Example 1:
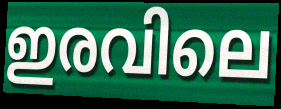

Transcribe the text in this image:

ഇരവിലെ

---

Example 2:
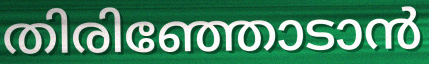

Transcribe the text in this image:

തിരിഞ്ഞോടാൻ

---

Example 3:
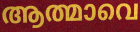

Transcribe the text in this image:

ആത്മാവെ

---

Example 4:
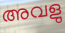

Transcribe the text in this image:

അവളു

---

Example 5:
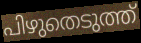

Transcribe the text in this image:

പിഴുതെടുത്ത്